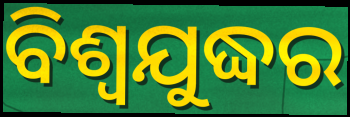
ବିଶ୍ବଯୁଦ୍ଧର